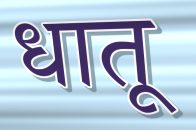
धातू